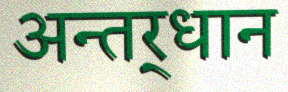
अन्तर्धान